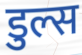
डुल्स